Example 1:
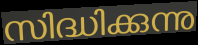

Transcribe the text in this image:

സിദ്ധിക്കുന്നു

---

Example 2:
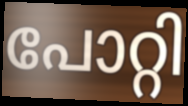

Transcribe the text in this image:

പോറ്റി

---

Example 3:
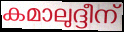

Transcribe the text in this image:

കമാലുദ്ദീന്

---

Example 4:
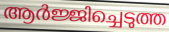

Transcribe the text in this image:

ആർജ്ജിച്ചെടുത്ത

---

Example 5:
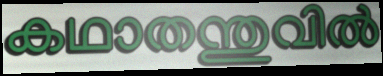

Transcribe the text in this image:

കഥാതന്തുവിൽ